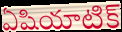
ఏషియాటిక్